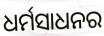
ଧର୍ମସାଧନର